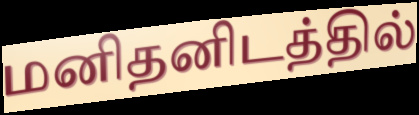
மனிதனிடத்தில்